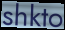
shkto